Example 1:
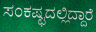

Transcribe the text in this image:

ಸಂಕಷ್ಟದಲ್ಲಿದ್ದಾರೆ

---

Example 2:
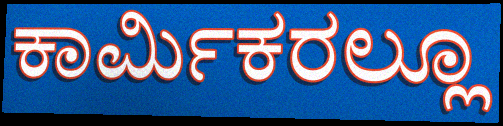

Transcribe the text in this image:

ಕಾರ್ಮಿಕರಲ್ಲೂ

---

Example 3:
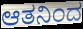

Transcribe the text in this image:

ಆತನಿಂದ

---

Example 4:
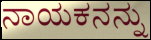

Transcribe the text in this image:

ನಾಯಕನನ್ನು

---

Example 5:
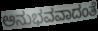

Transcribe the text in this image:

ಅನುಭವವಾದಂತೆ